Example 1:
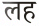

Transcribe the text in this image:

लह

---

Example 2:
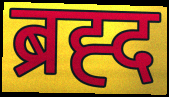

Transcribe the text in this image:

ब्रह्द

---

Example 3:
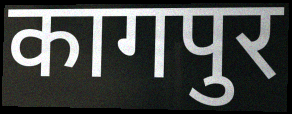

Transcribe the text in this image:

कागपुर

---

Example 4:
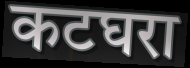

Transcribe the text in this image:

कटघरा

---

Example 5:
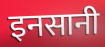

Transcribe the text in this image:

इनसानी